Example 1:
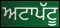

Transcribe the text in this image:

ਅਟਾਪੱਟੂ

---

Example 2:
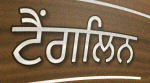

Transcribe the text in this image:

ਟੈਂਗਲਿਨ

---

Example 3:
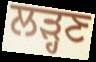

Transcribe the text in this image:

ਲੜ੍ਹਣ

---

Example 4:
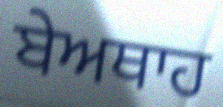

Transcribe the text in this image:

ਬੇਅਥਾਹ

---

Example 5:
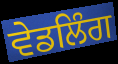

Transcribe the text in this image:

ਵੇਡਲਿੰਗ